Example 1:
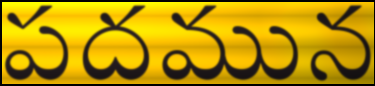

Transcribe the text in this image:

పదమున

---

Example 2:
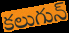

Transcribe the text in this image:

కలుగున్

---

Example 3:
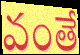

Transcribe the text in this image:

వంతే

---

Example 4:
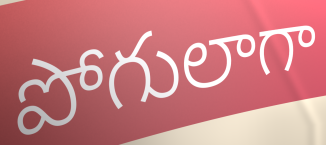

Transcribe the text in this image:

పోగులాగా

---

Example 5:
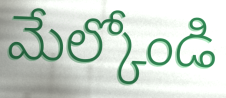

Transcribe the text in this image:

మేల్కోండి